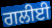
ਗਲੀਈ